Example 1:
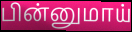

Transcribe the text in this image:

பின்னுமாய்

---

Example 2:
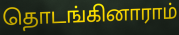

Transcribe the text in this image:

தொடங்கினாராம்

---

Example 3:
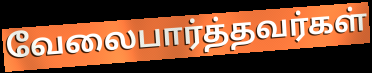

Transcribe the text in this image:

வேலைபார்த்தவர்கள்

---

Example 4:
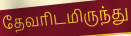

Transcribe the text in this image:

தேவரிடமிருந்து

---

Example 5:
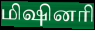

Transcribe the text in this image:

மிஷினரி